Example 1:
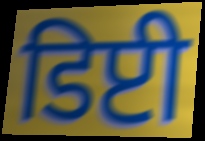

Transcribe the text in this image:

डिप्टी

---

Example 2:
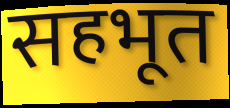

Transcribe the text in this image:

सहभूत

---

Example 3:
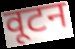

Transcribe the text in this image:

वूटन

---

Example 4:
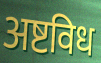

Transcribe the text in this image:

अष्टविध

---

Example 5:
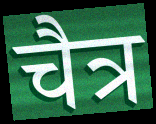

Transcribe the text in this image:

चैत्र